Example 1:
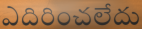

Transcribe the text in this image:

ఎదిరించలేదు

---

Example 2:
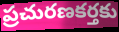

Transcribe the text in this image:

ప్రచురణకర్తకు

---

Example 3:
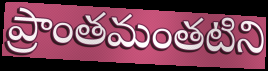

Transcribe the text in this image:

ప్రాంతమంతటిని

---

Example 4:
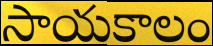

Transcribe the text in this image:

సాయకాలం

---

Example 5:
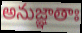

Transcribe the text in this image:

అనుజ్ఞాతాః